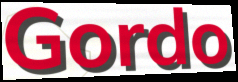
Gordo